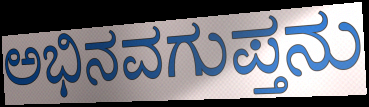
ಅಭಿನವಗುಪ್ತನು